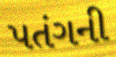
પતંગની